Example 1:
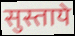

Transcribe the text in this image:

सुस्ताये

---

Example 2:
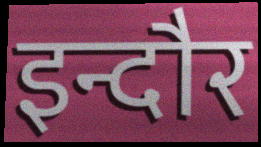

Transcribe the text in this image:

इन्दौर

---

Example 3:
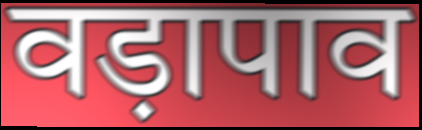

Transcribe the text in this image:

वड़ापाव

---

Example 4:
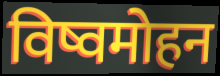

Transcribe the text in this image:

विष्वमोहन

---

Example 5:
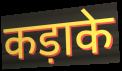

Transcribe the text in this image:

कड़ाके